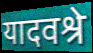
यादवश्रे